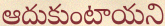
ఆదుకుంటాయని